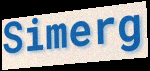
Simerg